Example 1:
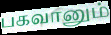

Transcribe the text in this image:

பகவானும்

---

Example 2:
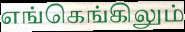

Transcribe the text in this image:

எங்கெங்கிலும்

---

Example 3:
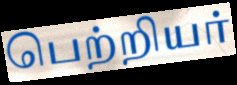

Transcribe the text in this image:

பெற்றியர்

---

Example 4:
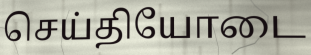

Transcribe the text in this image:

செய்தியோடை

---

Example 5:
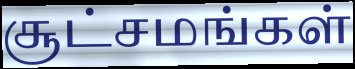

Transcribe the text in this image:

சூட்சமங்கள்